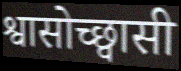
श्वासोच्छ्वासी